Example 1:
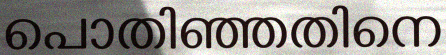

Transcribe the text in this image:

പൊതിഞ്ഞതിനെ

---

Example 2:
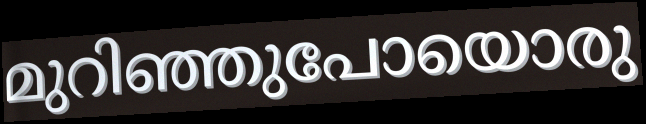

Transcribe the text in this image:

മുറിഞ്ഞുപോയൊരു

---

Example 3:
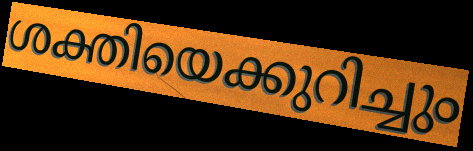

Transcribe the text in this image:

ശക്തിയെക്കുറിച്ചും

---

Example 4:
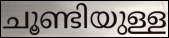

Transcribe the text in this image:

ചൂണ്ടിയുള്ള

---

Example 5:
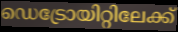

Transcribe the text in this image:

ഡെട്രോയിറ്റിലേക്ക്